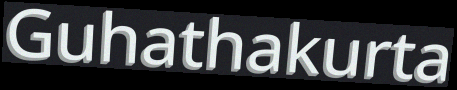
Guhathakurta